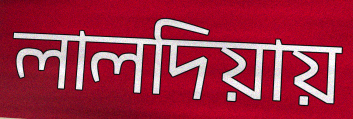
লালদিয়ায়